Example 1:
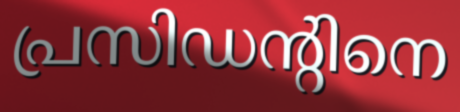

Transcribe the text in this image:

പ്രസിഡന്റിനെ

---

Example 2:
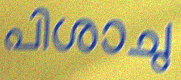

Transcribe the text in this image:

പിശാചു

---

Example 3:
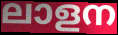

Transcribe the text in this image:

ലാളന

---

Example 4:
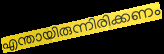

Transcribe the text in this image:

എന്തായിരുന്നിരിക്കണം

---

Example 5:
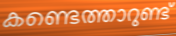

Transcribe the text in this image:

കണ്ടെത്താറുണ്ട്